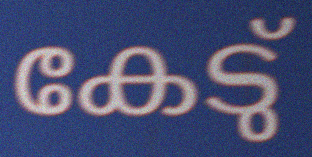
കേടു്